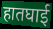
हातघाई